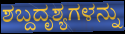
ಶಬ್ದದೃಶ್ಯಗಳನ್ನು